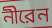
নীরেন